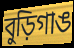
বুড়িগাঙ